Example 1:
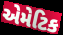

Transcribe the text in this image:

એમેટિક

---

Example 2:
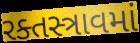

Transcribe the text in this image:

રક્તસ્ત્રાવમાં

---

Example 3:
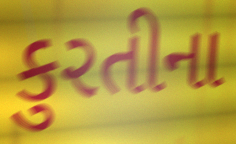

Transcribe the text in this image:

કુરતીના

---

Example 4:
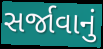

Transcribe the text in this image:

સર્જાવાનું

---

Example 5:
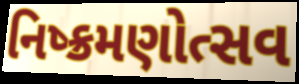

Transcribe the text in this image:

નિષ્ક્રમણોત્સવ